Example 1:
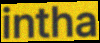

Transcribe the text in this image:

intha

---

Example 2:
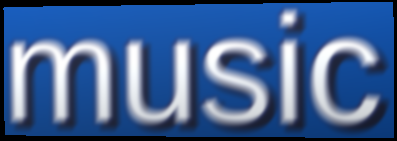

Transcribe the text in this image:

music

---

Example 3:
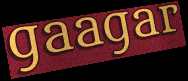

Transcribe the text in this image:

gaagar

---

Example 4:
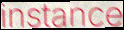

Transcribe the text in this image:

instance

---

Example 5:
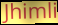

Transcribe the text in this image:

Jhimli